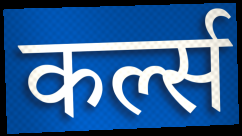
कर्ल्स